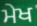
ਮੇਖ